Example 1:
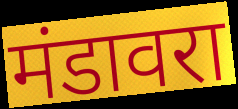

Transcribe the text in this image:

मंडावरा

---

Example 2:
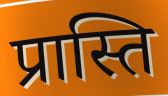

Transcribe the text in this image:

प्रास्ति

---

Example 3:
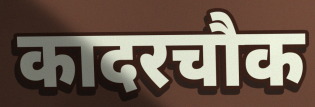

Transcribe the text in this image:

कादरचौक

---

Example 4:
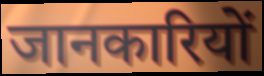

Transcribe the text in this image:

जानकारियों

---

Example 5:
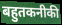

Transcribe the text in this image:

बहुतकनीकी